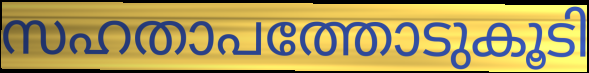
സഹതാപത്തോടുകൂടി